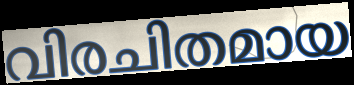
വിരചിതമായ